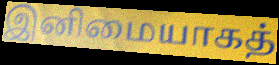
இனிமையாகத்